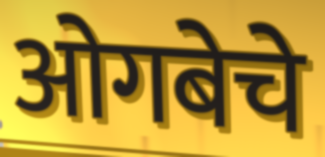
ओगबेचे